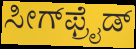
ಸೀಗ್‌ಫ್ರೈಡ್